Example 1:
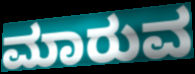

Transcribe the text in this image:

ಮಾರುವ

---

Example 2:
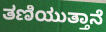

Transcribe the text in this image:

ತಣಿಯುತ್ತಾನೆ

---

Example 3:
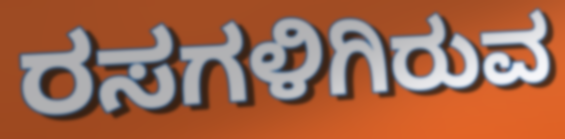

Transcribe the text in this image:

ರಸಗಳಿಗಿರುವ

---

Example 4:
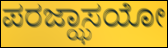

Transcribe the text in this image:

ಪರಜ್ಝಾಸಯೋ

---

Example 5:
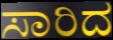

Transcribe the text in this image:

ಸಾರಿದ